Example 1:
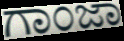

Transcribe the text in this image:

ಗಾಂಜಾ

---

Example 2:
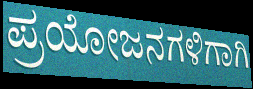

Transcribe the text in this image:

ಪ್ರಯೋಜನಗಳಿಗಾಗಿ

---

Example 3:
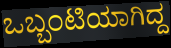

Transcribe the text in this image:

ಒಬ್ಬಂಟಿಯಾಗಿದ್ದ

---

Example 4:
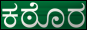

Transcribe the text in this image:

ಕಠೊರ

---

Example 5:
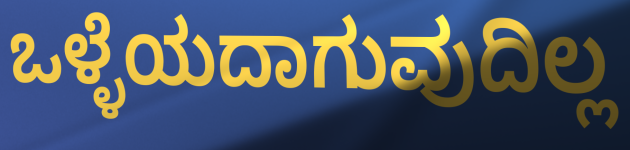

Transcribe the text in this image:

ಒಳ್ಳೆಯದಾಗುವುದಿಲ್ಲ